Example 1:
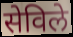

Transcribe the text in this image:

सेविले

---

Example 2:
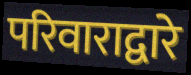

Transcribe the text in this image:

परिवाराद्वारे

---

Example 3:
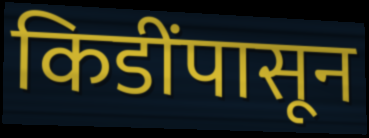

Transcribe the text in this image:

किडींपासून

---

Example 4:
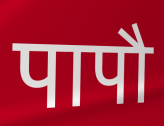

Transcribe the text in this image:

पापौ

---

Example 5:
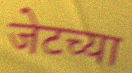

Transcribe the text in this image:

जेटच्या